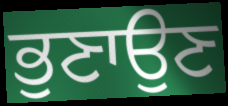
ਭੁਣਾਉਣ